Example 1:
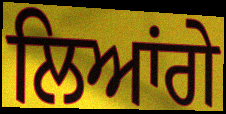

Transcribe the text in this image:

ਲਿਆਂਗੇ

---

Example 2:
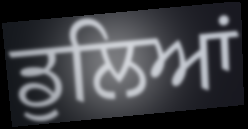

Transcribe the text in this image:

ਡੁਲਿਆਂ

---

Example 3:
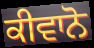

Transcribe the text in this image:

ਕੀਵਾਨੋ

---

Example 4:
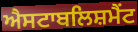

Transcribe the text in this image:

ਐਸਟਾਬਲਿਸ਼ਮੈਂਟ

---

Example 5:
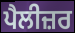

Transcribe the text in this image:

ਪੈਲੀਜ਼ਰ